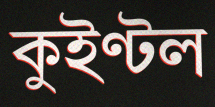
কুইণ্টল